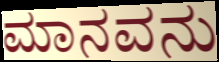
ಮಾನವನು